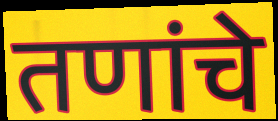
तणांचे